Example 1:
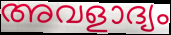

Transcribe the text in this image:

അവളാദ്യം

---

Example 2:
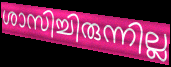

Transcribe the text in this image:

ശാസിച്ചിരുന്നില്ല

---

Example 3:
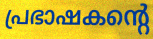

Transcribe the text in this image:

പ്രഭാഷകന്റെ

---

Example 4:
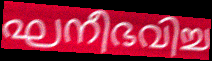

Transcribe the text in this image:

ഘനീഭവിച്ച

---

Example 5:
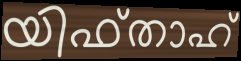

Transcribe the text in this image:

യിഫ്താഹ്